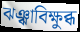
ঝঞ্ঝাবিক্ষুব্ধ